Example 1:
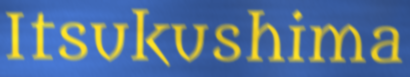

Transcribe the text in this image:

Itsukushima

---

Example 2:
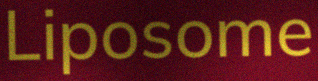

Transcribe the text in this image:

Liposome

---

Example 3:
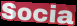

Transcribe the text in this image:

Socia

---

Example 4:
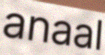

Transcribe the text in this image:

anaal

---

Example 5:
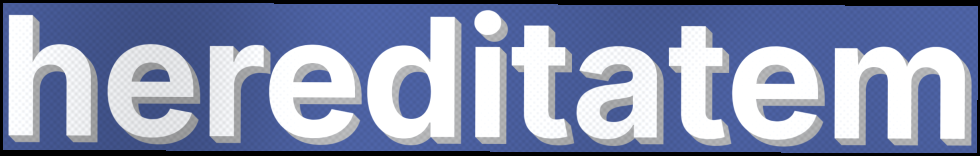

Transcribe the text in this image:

hereditatem